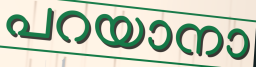
പറയാനാ